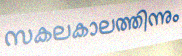
സകലകാലത്തിന്നും